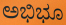
ಅಭಿಭೂ